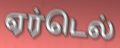
ஏர்டெல்